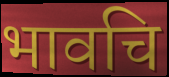
भावचि